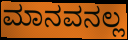
ಮಾನವನಲ್ಲ